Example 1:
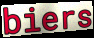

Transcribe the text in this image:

biers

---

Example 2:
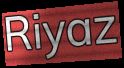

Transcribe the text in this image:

Riyaz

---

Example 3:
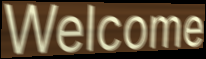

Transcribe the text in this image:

Welcome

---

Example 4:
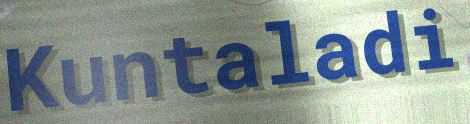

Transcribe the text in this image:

Kuntaladi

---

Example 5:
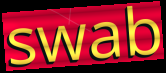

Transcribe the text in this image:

swab